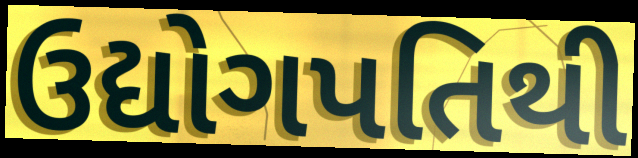
ઉદ્યોગપતિથી